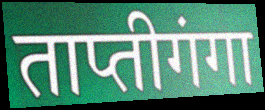
ताप्तीगंगा